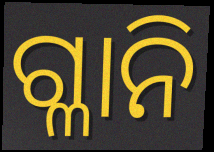
ଗ୍ଳାନି